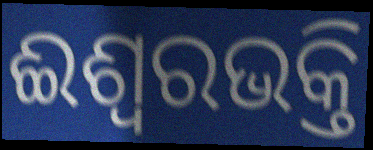
ଈଶ୍ୱରଭକ୍ତି